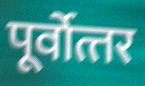
पूर्वोत्‍तर